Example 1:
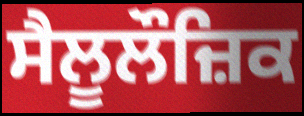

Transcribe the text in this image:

ਸੈਲੂਲੌਜ਼ਿਕ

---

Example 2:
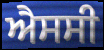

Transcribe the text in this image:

ਐਸਸੀ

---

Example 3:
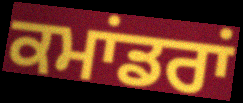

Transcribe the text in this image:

ਕਮਾਂਡਰਾਂ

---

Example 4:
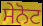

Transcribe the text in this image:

ਸੇਨੋਟ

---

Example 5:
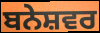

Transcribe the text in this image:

ਬਨੇਸ਼ਵਰ